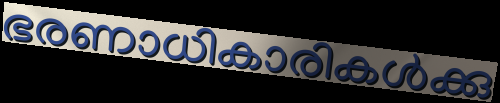
ഭരണാധികാരികൾക്കു